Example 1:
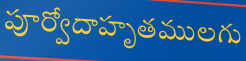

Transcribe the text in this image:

పూర్వోదాహృతములగు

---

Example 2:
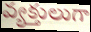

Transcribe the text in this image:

వ్యక్తులుగా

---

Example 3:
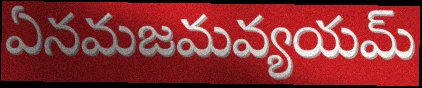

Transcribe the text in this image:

ఏనమజమవ్యయమ్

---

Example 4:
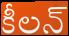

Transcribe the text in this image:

కీలన్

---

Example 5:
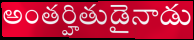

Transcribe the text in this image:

అంతర్హితుడైనాడు